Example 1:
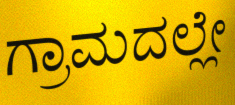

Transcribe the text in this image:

ಗ್ರಾಮದಲ್ಲೇ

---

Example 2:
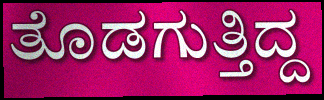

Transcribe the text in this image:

ತೊಡಗುತ್ತಿದ್ದ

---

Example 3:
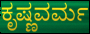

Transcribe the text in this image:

ಕೃಷ್ಣವರ್ಮ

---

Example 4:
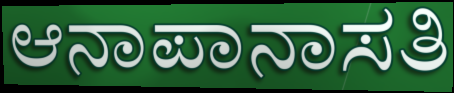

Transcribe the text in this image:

ಆನಾಪಾನಾಸತಿ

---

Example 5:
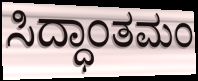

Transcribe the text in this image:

ಸಿದ್ಧಾಂತಮಂ